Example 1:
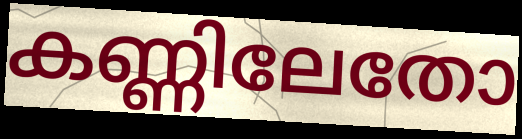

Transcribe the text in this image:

കണ്ണിലേതോ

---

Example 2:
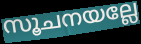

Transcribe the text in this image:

സൂചനയല്ലേ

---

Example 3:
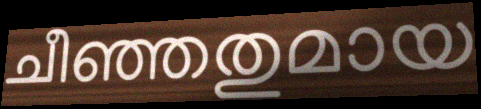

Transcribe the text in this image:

ചീഞ്ഞതുമായ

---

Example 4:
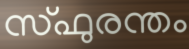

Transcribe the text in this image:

സ്ഫുരന്തം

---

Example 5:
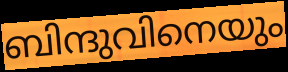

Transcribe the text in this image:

ബിന്ദുവിനെയും